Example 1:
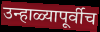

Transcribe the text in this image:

उन्हाळ्यापूर्वीच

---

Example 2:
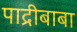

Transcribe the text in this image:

पाद्रीबाबा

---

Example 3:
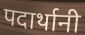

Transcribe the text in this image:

पदार्थानी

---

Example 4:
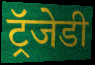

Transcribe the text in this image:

ट्रॅजेडी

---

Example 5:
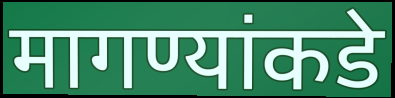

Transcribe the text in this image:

मागण्यांकडे